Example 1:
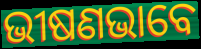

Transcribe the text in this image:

ଭୀଷଣଭାବେ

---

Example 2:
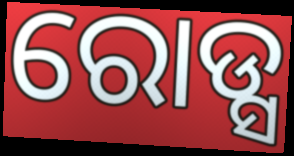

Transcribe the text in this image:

ରୋଡ୍ସ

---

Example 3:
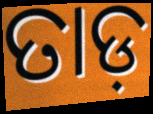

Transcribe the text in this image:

ତାଡ଼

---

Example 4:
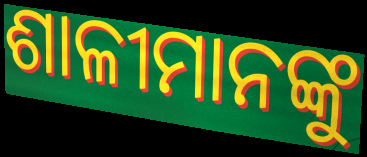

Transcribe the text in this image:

ଶାଳୀମାନଙ୍କୁ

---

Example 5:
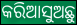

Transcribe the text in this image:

କରିଆସୁଅଛୁ